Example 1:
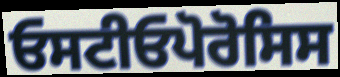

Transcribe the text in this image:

ਓਸਟੀਓਪੋਰੋਸਿਸ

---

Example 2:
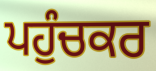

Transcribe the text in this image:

ਪਹੁੰਚਕਰ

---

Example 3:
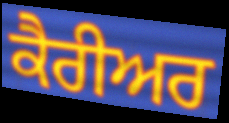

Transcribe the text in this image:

ਕੈਰੀਅਰ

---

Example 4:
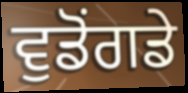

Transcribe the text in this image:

ਵੁਡੋਂਗਡੇ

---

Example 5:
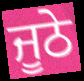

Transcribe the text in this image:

ਜੂਠੇ